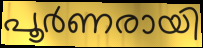
പൂർണരായി